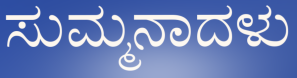
ಸುಮ್ಮನಾದಳು